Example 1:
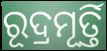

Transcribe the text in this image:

ରୂଦ୍ରମୂର୍ତ୍ତି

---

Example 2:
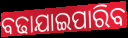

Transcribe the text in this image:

ବଢାଯାଇପାରିବ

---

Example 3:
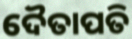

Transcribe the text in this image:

ଦୈତାପତି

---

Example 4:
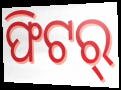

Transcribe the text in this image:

ଫିଟର୍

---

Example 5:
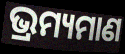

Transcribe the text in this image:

ଭ୍ରମ୍ୟମାଣ